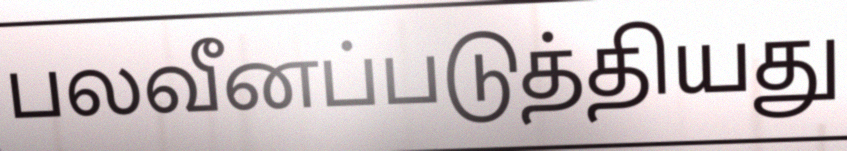
பலவீனப்படுத்தியது